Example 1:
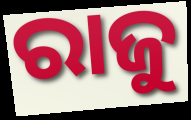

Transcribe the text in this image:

ରାଜୁ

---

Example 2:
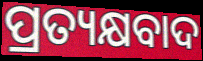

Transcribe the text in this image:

ପ୍ରତ୍ୟକ୍ଷବାଦ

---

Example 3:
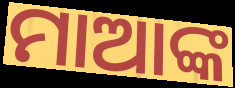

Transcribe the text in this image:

ମାଆଙ୍କ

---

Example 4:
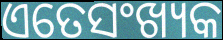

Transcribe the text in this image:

ଏତେସଂଖ୍ୟକ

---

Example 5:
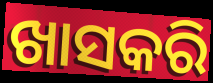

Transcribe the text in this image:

ଖାସକରି